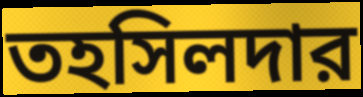
তহসিলদার